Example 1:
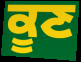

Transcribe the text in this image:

ਕੂਣ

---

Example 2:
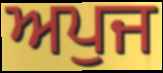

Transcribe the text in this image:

ਅਪੁਜ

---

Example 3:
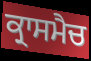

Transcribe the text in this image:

ਕ੍ਰਾਸਮੈਚ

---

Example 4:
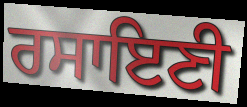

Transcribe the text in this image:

ਰਸਾਇਣੀ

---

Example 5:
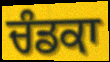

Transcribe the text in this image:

ਚੰਡਕਾ